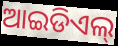
ଆଇଡିଏଲ୍